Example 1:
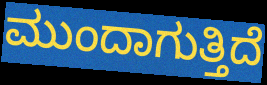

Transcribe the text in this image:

ಮುಂದಾಗುತ್ತಿದೆ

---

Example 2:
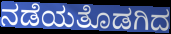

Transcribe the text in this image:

ನಡೆಯತೊಡಗಿದ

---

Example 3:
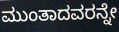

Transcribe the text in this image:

ಮುಂತಾದವರನ್ನೇ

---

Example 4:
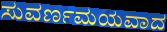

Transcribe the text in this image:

ಸುವರ್ಣಮಯವಾದ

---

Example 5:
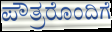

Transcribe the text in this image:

ಪೌತ್ರರೊಂದಿಗೆ